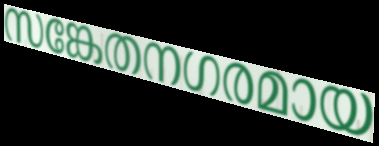
സങ്കേതനഗരമായ